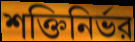
শক্তিনির্ভর